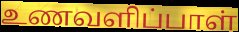
உணவளிப்பாள்